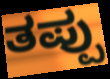
ತಪ್ಪು